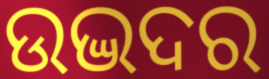
ଉଦ୍ଭଦର